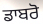
ਡਾਬਰੋ